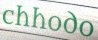
chhodo